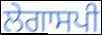
ਲੇਗਾਸਪੀ